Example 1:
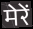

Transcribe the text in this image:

मेरें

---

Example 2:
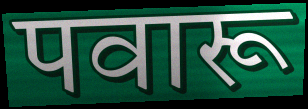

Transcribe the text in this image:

पवारू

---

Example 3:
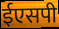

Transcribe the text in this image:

ईएसपी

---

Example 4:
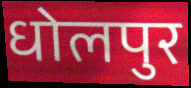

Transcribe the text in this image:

धोलपुर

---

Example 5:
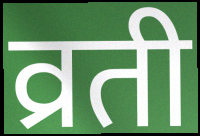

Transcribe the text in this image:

व्रती